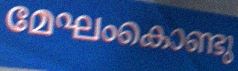
മേഘംകൊണ്ടു